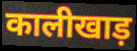
कालीखाड़